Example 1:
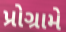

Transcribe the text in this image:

પ્રોગ્રામે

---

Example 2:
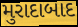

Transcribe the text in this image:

મુરાદાબાદ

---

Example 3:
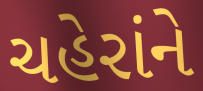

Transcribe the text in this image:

ચહેરાંને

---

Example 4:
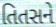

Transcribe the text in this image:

તિતસને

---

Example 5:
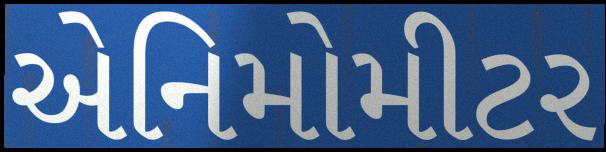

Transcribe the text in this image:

એનિમોમીટર